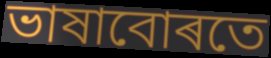
ভাষাবোৰতে